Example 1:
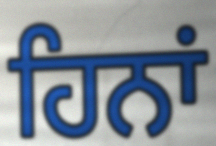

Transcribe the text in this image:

ਹਿਨਾਂ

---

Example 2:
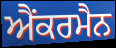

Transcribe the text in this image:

ਐਂਕਰਮੈਨ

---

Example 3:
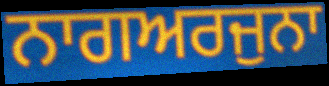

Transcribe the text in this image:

ਨਾਗਅਰਜੁਨਾ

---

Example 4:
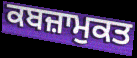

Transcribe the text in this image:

ਕਬਜ਼ਾਮੁਕਤ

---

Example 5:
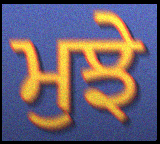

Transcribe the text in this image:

ਮੁਝੇ